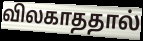
விலகாததால்